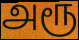
அரூ